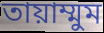
তায়াম্মুম